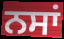
ਨਸਾਂ